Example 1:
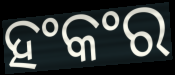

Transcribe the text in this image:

ହଂକଂର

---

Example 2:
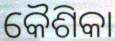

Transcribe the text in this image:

କୈଶିକା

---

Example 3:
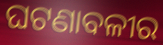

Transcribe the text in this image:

ଘଟଣାବଳୀର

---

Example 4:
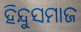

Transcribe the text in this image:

ହିନ୍ଦୁସମାଜ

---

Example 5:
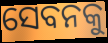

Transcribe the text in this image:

ସେବନକୁ